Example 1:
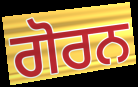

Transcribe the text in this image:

ਗੋਰਨ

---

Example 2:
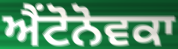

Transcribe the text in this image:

ਐਂਟੋਨੋਵਕਾ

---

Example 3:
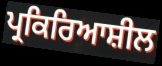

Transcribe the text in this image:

ਪ੍ਰਕਿਰਿਆਸ਼ੀਲ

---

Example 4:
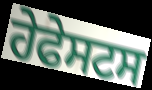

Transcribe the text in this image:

ਹੇਫੇਸਟਸ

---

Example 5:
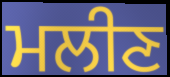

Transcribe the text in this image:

ਮਲੀਣ